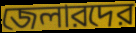
জেলারদের